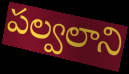
పల్వలాని